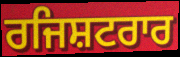
ਰਜਿਸ਼ਟਰਾਰ